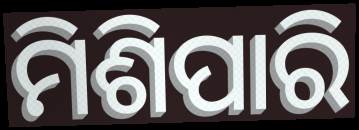
ମିଶିପାରି